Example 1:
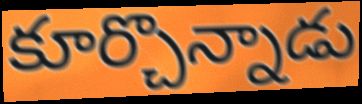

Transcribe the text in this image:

కూర్చొన్నాడు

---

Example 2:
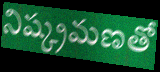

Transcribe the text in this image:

నిష్క్రమణతో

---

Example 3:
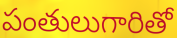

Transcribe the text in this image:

పంతులుగారితో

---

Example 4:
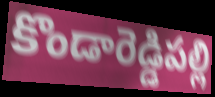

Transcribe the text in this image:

కొండారెడ్డిపల్లి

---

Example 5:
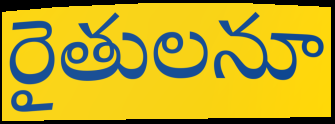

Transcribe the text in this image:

రైతులనూ